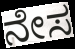
ನೇಸ